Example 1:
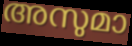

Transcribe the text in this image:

അസുമാ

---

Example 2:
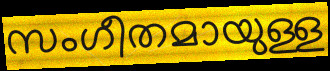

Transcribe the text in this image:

സംഗീതമായുള്ള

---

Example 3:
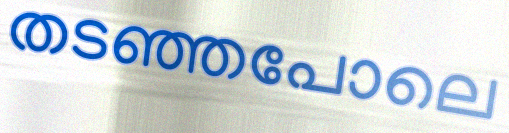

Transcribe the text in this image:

തടഞ്ഞപോലെ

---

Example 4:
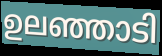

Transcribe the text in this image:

ഉലഞ്ഞാടി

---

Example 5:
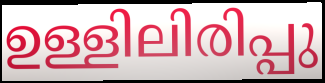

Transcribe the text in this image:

ഉള്ളിലിരിപ്പു